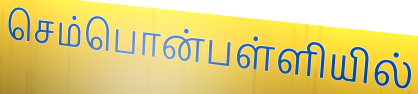
செம்பொன்பள்ளியில்